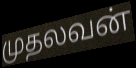
முதலவன்